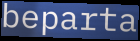
beparta